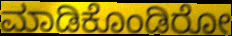
ಮಾಡಿಕೊಂಡಿರೋ